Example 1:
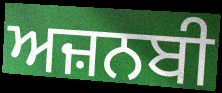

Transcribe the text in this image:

ਅਜ਼ਨਬੀ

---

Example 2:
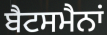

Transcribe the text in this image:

ਬੈਟਸਮੈਨਾਂ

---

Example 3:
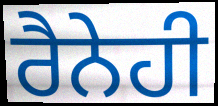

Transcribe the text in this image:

ਰੈਨੇਹੀ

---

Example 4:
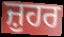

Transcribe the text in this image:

ਜ਼ੁਹਰ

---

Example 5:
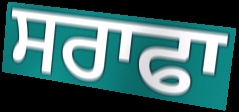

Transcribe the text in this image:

ਸਰਾਫਾ